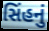
સિંહનું